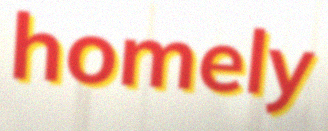
homely